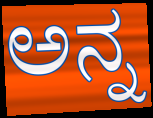
ಅನ್ನ